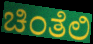
ಚಿಂತೆಲಿ